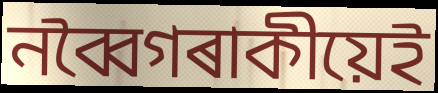
নব্বৈগৰাকীয়েই